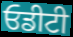
ਓਡੀਟੀ